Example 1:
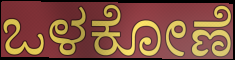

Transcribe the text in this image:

ಒಳಕೋಣೆ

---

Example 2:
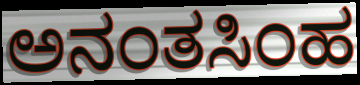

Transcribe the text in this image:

ಅನಂತಸಿಂಹ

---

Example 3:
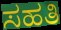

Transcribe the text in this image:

ಸಹತಿ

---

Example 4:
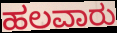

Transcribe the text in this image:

ಹಲವಾರು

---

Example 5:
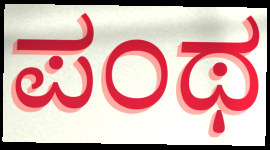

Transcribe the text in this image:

ಪಂಥ